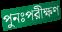
পুনঃপরীক্ষণ